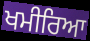
ਖਮੀਰਿਆ